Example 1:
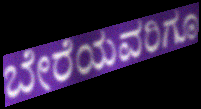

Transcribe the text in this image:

ಬೇರೆಯವರಿಗೂ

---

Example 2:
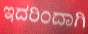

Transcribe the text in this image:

ಇದರಿಂದಾಗಿ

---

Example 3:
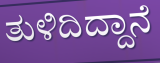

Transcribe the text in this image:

ತುಳಿದಿದ್ದಾನೆ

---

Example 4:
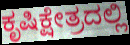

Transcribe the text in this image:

ಕೃಷಿಕ್ಷೇತ್ರದಲ್ಲಿ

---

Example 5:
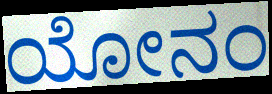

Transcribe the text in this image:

ಯೋನಂ